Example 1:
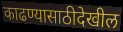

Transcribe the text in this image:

काढण्यासाठीदेखील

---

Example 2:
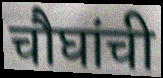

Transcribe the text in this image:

चौघांची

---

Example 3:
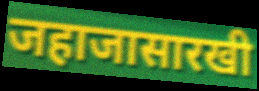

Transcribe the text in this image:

जहाजासारखी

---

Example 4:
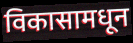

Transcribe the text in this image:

विकासामधून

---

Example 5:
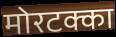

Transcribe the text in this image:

मोरटक्का